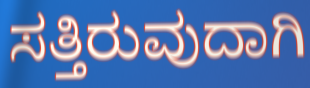
ಸತ್ತಿರುವುದಾಗಿ